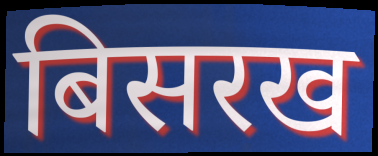
बिसरख